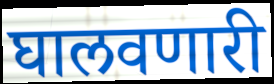
घालवणारी